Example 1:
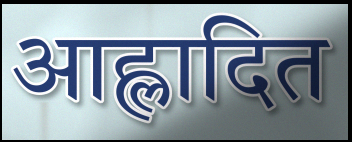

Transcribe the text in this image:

आह्लादित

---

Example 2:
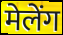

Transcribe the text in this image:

मेलेंग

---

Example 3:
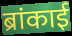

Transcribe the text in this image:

ब्रांकाई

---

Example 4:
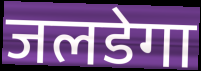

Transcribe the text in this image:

जलडेगा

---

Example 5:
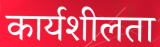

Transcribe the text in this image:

कार्यशीलता